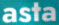
asta